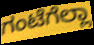
ಗಂಟೆಗೆಲ್ಲಾ